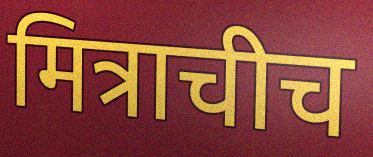
मित्राचीच